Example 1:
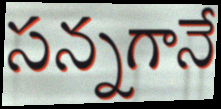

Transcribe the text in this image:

సన్నగానే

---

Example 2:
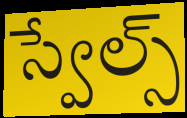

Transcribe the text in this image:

స్వేల్స్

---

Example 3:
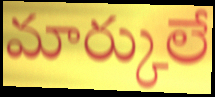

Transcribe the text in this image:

మార్కులే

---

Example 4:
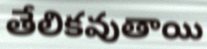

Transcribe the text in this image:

తేలికవుతాయి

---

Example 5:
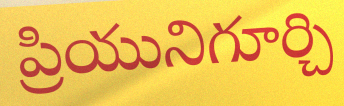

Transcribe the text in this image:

ప్రియునిగూర్చి